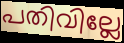
പതിവില്ലേ